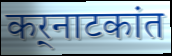
कर्नाटकांत